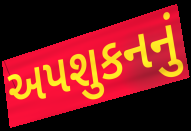
અપશુકનનું